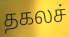
தகலச்